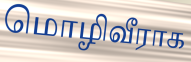
மொழிவீராக